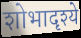
शोभादृश्ये